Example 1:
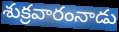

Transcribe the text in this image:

శుక్రవారంనాడు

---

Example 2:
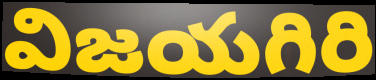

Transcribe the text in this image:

విజయగిరి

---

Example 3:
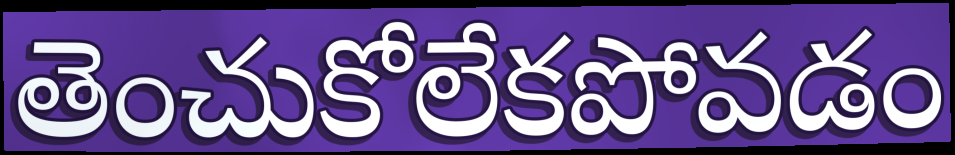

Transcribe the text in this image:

తెంచుకోలేకపోవడం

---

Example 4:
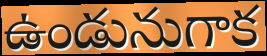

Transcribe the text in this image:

ఉండునుగాక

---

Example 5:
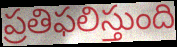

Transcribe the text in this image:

ప్రతిఫలిస్తుంది